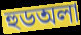
হুডঅলা